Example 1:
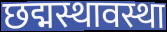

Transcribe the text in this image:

छद्मस्थावस्था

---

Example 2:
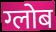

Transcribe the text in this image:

ग्लोब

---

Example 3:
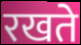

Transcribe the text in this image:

रखते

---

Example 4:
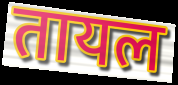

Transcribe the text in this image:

तायल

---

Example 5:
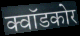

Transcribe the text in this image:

क्वॉडकोर